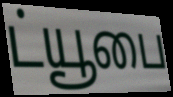
ட்யூபை